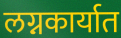
लग्नकार्यात